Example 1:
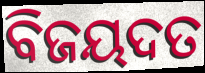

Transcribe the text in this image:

ବିଜୟଦତ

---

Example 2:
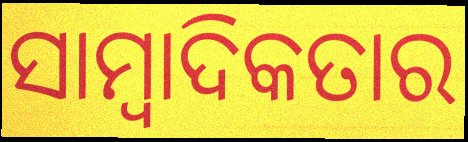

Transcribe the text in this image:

ସାମ୍ୱାଦିକତାର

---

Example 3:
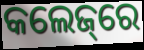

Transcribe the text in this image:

କଲେଜ୍‌ରେ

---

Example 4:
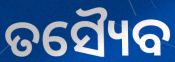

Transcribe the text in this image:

ତସ୍ୟୈବ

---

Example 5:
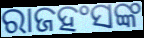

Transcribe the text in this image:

ରାଜହଂସଙ୍କ